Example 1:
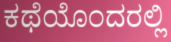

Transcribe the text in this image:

ಕಥೆಯೊಂದರಲ್ಲಿ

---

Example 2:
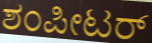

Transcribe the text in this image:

ಶಂಪೀಟರ್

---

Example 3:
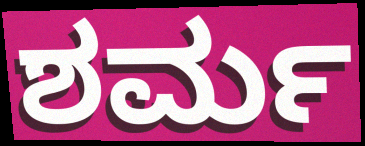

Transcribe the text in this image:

ಶರ್ಮ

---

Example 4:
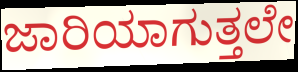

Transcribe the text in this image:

ಜಾರಿಯಾಗುತ್ತಲೇ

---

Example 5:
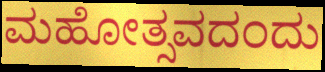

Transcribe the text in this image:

ಮಹೋತ್ಸವದಂದು